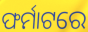
ଫର୍ମାଟରେ